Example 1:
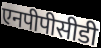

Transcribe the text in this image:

एनपीपीसीडी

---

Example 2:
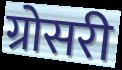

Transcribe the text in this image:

ग्रोसरी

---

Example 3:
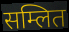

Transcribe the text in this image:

सम्लित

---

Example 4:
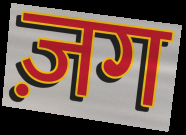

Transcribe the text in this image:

ज़ग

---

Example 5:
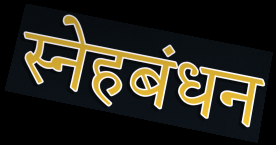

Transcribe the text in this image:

स्नेहबंधन